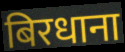
बिरधाना